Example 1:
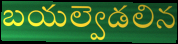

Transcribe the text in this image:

బయల్వెడలిన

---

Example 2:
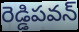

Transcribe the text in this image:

రెడ్డిపవన్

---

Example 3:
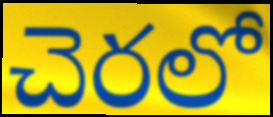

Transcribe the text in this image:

చెరలో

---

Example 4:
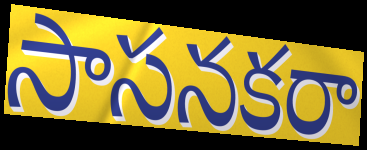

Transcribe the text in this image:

సాసనకరా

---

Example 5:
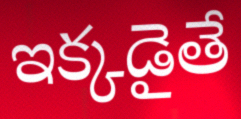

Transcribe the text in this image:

ఇక్కడైతే